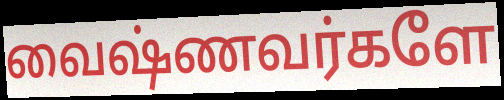
வைஷ்ணவர்களே